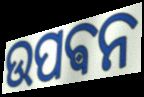
ଉପଵନ